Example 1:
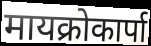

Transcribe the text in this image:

मायक्रोकार्पा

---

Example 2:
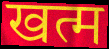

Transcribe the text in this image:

खत्म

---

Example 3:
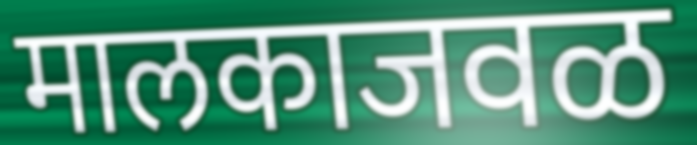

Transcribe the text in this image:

मालकाजवळ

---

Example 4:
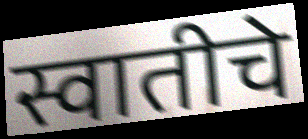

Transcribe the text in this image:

स्वातीचे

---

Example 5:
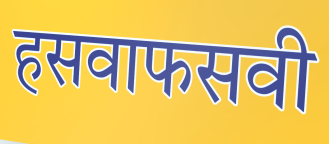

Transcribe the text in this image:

हसवाफसवी